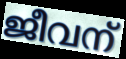
ജീവന്